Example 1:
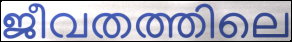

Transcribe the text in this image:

ജീവതത്തിലെ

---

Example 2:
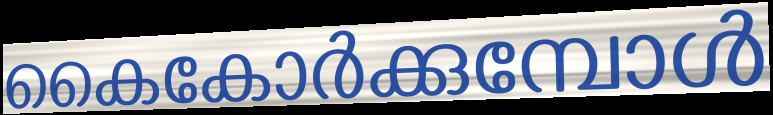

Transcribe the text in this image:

കൈകോർക്കുമ്പോൾ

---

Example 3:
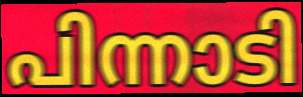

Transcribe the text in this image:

പിന്നാടി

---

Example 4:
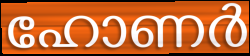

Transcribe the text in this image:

ഹോണർ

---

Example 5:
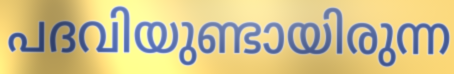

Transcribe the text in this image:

പദവിയുണ്ടായിരുന്ന